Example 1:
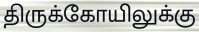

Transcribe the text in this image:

திருக்கோயிலுக்கு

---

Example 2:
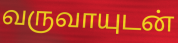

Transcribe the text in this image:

வருவாயுடன்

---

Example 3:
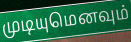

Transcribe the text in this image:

முடியுமெனவும்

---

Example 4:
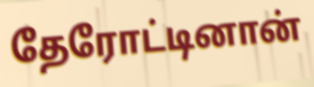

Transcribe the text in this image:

தேரோட்டினான்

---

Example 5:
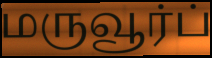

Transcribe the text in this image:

மருவூர்ப்